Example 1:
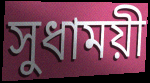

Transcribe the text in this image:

সুধাময়ী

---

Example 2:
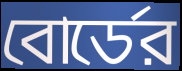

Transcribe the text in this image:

বোর্ডের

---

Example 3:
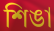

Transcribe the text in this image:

শিঙা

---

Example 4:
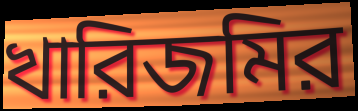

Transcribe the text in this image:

খারিজমির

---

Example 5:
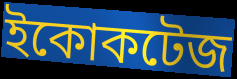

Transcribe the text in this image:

ইকোকটেজ